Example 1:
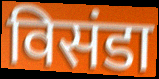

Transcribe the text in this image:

विसंडा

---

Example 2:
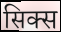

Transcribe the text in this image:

सिक्स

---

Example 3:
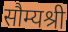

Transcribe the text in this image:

सौम्यश्री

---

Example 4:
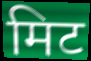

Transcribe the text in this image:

मिट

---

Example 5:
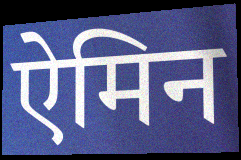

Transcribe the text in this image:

ऐमिन